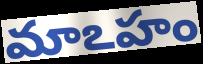
మాఽహం